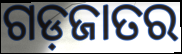
ଗଡ଼ଜାତର